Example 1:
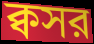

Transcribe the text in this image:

ক্বসর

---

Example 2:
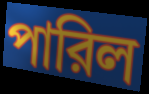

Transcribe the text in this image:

পারিল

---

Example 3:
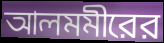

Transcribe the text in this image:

আলমমীরের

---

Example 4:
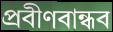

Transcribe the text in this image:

প্রবীণবান্ধব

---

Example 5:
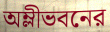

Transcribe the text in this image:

অম্লীভবনের